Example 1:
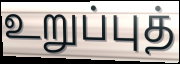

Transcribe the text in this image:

உறுப்புத்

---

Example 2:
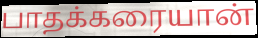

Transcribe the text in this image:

பாதக்கரையான்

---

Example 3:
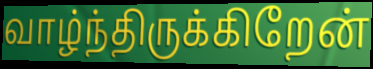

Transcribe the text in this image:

வாழ்ந்திருக்கிறேன்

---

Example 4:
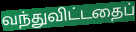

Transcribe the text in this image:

வந்துவிட்டதைப்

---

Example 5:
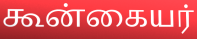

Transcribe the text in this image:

கூன்கையர்